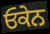
ਓਕੇਨ